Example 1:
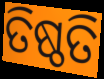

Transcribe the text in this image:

ତିଷ୍ଠତି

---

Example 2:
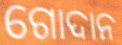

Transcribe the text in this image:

ଗୋଦାନ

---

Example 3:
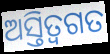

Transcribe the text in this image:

ଅସ୍ତିତ୍ବଗତ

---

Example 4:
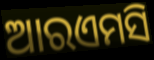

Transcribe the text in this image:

ଆରଏମସି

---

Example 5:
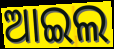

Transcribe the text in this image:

ଆଇଲ